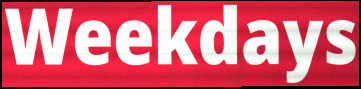
Weekdays